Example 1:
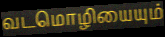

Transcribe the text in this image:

வடமொழியையும்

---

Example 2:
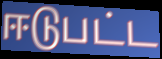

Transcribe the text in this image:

ஈடுபட்ட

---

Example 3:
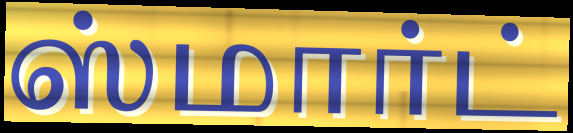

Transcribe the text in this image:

ஸ்மார்ட்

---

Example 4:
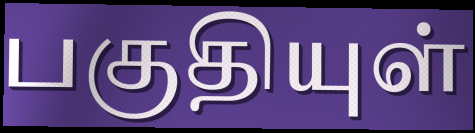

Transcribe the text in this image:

பகுதியுள்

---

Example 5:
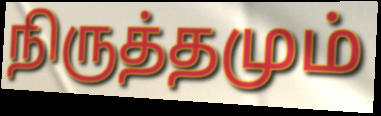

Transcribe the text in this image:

நிருத்தமும்